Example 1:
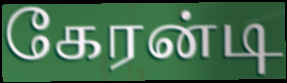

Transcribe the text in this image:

கேரன்டி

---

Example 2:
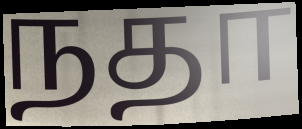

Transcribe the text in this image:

நதா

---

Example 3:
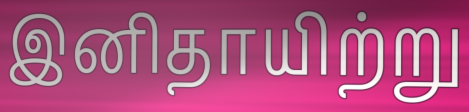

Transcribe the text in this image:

இனிதாயிற்று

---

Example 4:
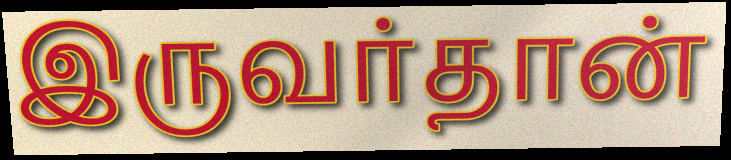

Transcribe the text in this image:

இருவர்தான்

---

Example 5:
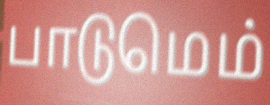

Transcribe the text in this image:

பாடுமெம்